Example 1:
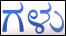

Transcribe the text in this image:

ಗಳು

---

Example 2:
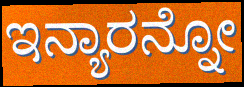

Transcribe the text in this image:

ಇನ್ಯಾರನ್ನೋ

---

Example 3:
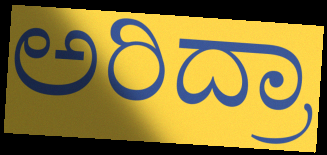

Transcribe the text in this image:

ಅರಿದ್ರಾ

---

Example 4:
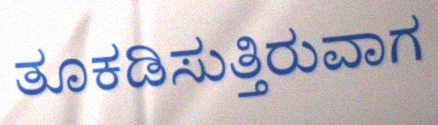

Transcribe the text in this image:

ತೂಕಡಿಸುತ್ತಿರುವಾಗ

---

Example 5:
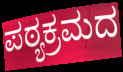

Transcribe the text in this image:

ಪಠ್ಯಕ್ರಮದ